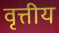
वृत्तीय